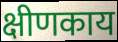
क्षीणकाय